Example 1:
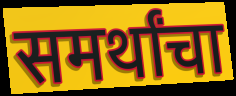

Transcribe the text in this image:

समर्थांचा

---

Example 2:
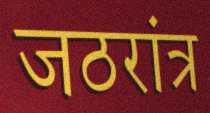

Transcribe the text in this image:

जठरांत्र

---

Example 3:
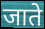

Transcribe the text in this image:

जाते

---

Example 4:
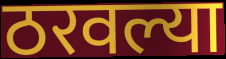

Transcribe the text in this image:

ठरवल्या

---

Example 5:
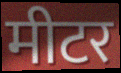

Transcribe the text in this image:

मीटर